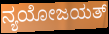
ನ್ಯಯೋಜಯತ್